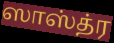
ஸாஸ்த்ர